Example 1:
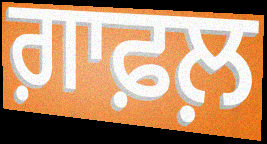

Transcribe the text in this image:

ਗ਼ਾਫ਼ਲ਼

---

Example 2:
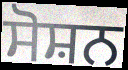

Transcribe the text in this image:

ਸੋਸ਼ਨ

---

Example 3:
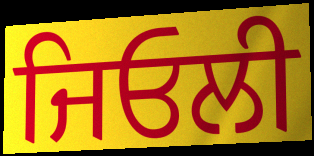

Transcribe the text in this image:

ਜਿਓਲੀ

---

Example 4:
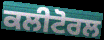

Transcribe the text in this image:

ਕਲੀਟੋਰਲ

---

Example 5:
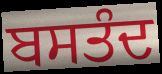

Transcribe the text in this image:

ਬਸਤੰਦ